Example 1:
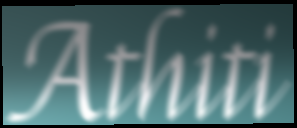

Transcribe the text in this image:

Athiti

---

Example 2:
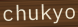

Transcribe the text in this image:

chukyo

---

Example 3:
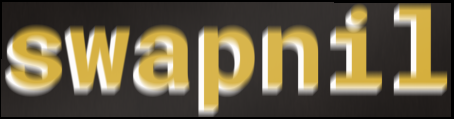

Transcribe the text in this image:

swapnil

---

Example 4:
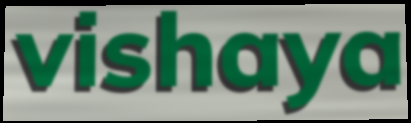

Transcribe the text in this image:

vishaya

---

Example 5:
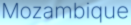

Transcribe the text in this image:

Mozambique